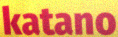
katano